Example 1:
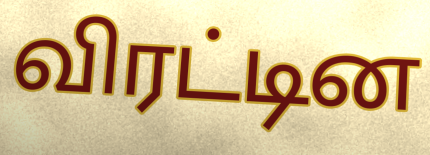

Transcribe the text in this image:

விரட்டின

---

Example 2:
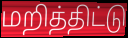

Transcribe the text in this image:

மறித்திட்டு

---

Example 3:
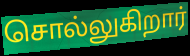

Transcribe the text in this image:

சொல்லுகிறார்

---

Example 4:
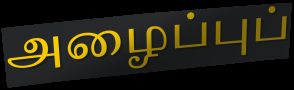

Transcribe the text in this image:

அழைப்புப்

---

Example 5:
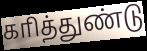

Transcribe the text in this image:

கரித்துண்டு